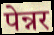
पेन्नर